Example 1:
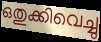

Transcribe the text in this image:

ഒതുക്കിവെച്ചു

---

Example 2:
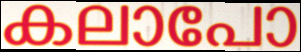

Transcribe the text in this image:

കലാപോ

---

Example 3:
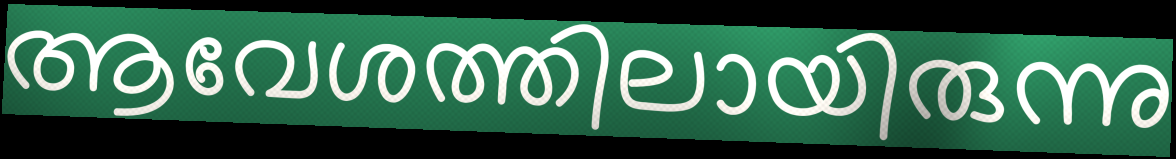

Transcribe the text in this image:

ആവേശത്തിലായിരുന്നു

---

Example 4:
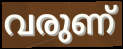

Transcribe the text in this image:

വരുണ്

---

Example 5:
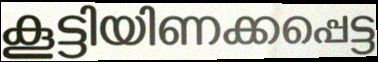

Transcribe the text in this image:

കൂട്ടിയിണക്കപ്പെട്ട